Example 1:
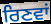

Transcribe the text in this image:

ਰਿਣਵਾਂ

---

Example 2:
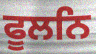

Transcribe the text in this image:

ਫੂਲਨਿ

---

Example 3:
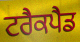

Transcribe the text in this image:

ਟਰੈਕਪੈਡ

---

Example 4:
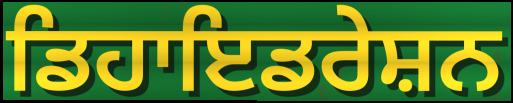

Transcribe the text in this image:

ਡਿਹਾਇਡਰੇਸ਼ਨ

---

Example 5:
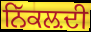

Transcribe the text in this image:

ਨਿੱਕਲ਼ਦੀ